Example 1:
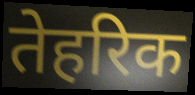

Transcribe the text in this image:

तेहरिक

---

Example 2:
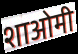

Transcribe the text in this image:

शाओमी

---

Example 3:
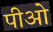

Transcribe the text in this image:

पीओ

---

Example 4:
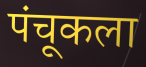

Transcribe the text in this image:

पंचूकला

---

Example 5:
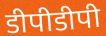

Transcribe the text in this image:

डीपीडीपी